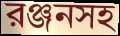
রঞ্জনসহ